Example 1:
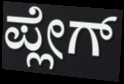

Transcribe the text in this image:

ಪ್ಲೇಗ್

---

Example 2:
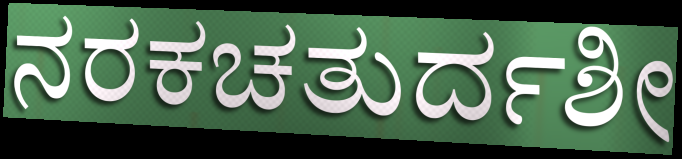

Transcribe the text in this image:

ನರಕಚತುರ್ದಶೀ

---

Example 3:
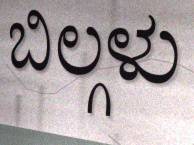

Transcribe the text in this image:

ಬಿಲ್ಗಳು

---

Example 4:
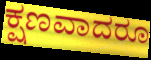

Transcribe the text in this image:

ಕ್ಷಣವಾದರೂ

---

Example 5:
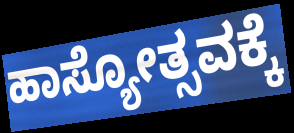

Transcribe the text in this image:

ಹಾಸ್ಯೋತ್ಸವಕ್ಕೆ